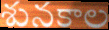
శునకాల